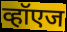
व्हॉएज